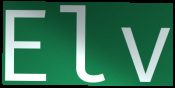
Elv